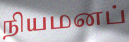
நியமனப்